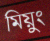
মিয়ুং